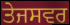
ਤੇਜਸਵਰ